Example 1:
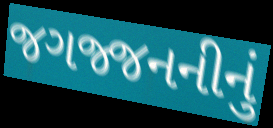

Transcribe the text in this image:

જગજ્જનનીનું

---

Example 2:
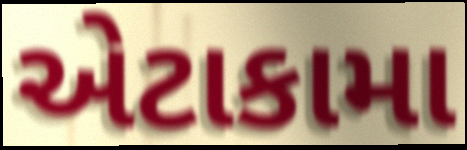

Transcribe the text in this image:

એટાકામા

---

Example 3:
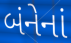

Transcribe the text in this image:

બંનેનાં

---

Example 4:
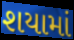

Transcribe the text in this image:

શયામાં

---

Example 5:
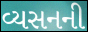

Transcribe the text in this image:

વ્યસનની